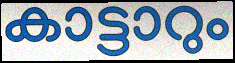
കാട്ടാറും